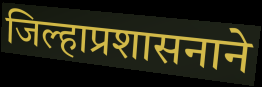
जिल्हाप्रशासनाने